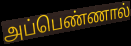
அப்பெண்ணால்